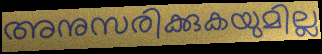
അനുസരിക്കുകയുമില്ല